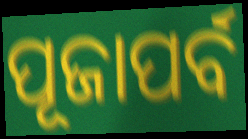
ପୂଜାପର୍ବ